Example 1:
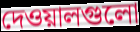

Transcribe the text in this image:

দেওয়ালগুলো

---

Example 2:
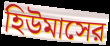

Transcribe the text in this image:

হিউমাসের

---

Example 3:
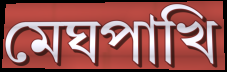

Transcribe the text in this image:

মেঘপাখি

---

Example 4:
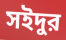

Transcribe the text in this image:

সইদুর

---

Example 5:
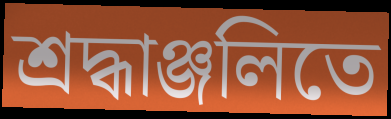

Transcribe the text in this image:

শ্রদ্ধাঞ্জলিতে